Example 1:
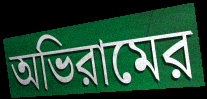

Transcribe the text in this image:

অভিরামের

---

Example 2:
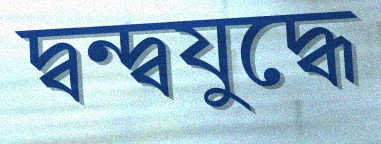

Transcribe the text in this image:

দ্বন্দ্বযুদ্ধে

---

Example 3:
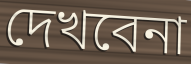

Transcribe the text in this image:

দেখবেনা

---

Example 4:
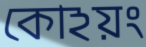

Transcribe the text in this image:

কোঽয়ং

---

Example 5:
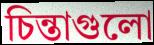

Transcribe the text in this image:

চিন্তাগুলো